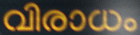
വിരാധം